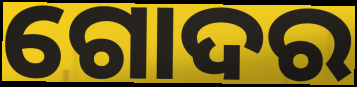
ଗୋଦର